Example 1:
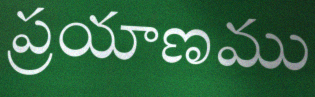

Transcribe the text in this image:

ప్రయాణము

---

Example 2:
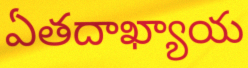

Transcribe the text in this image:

ఏతదాఖ్యాయ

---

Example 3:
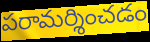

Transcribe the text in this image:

పరామర్శించడం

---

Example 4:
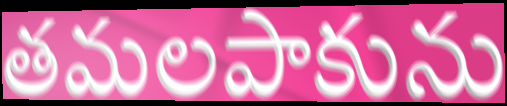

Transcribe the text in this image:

తమలపాకును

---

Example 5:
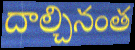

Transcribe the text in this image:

దాల్చినంత